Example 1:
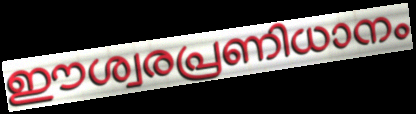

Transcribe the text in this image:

ഈശ്വരപ്രണിധാനം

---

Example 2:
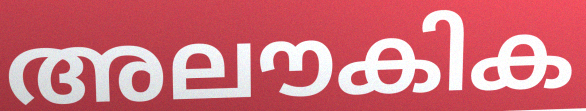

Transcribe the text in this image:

അലൗകിക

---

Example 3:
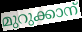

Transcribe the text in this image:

മുറുക്കാന്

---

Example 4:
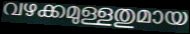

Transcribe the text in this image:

വഴക്കമുള്ളതുമായ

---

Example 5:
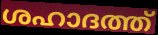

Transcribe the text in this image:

ശഹാദത്ത്